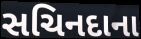
સચિનદાના